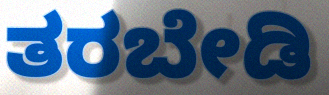
ತರಬೇಡಿ